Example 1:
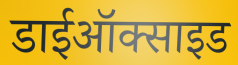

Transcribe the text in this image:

डाईऑक्साइड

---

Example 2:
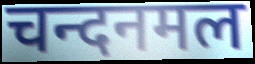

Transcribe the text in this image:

चन्दनमल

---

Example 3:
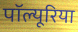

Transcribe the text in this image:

पॉल्यूरिया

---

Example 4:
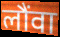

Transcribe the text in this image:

लौंवा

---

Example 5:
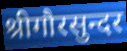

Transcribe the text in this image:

श्रीगौरसुन्दर